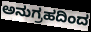
ಅನುಗ್ರಹದಿಂದ